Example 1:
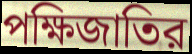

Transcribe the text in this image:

পক্ষিজাতির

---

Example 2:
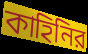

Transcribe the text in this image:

কাহিনির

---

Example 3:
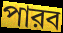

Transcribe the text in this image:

পারব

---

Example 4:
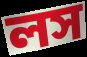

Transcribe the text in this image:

লস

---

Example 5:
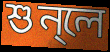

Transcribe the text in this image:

শুন্‌লে